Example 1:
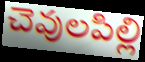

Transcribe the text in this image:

చెవులపిల్లి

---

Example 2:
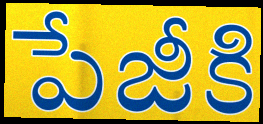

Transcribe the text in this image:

పేజీకి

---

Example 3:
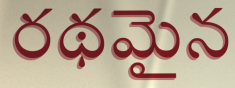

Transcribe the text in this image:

రథమైన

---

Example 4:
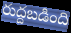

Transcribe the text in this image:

రుద్దబడింది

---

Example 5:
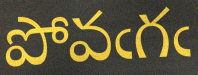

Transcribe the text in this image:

పోవఁగఁ